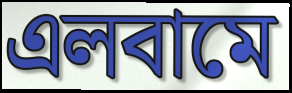
এলবামে